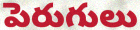
పెరుగులు